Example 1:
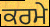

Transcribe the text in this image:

ਕਰਮੇ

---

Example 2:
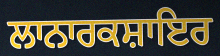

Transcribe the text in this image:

ਲਾਨਾਰਕਸ਼ਾਇਰ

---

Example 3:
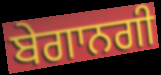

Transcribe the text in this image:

ਬੇਗਾਨਗੀ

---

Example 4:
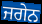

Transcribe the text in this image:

ਜਗੇਨ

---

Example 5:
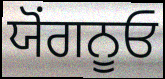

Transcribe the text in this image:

ਯੋਂਗਨੂਓ